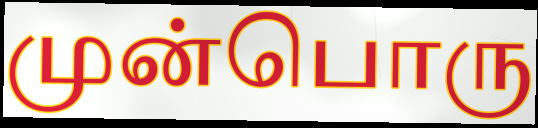
முன்பொரு